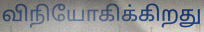
விநியோகிக்கிறது